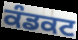
ਕੰਡਕਟ